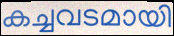
കച്ചവടമായി